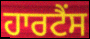
ਹਾਰਟੈਂਸ